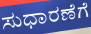
ಸುಧಾರಣೆಗೆ